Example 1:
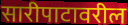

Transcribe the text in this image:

सारीपाटावरील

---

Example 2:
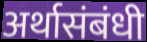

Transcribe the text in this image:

अर्थासंबंधी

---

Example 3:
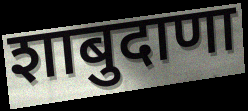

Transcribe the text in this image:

शाबुदाणा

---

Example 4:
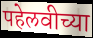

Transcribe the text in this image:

पहेलवीच्या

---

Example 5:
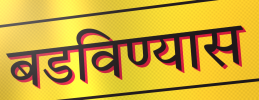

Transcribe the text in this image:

बडविण्यास